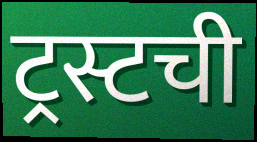
ट्रस्टची